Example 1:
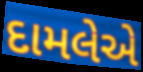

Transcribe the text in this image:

દામલેએ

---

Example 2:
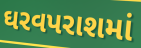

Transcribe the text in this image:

ઘરવપરાશમાં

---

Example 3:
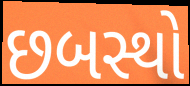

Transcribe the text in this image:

છબસ્થો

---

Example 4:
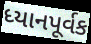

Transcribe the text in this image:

ધ્યાનપૂર્વક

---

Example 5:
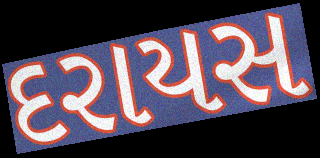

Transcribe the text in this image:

દરાયસ